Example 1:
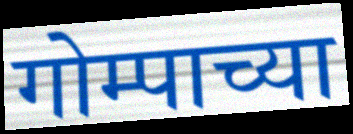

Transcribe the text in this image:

गोम्पाच्या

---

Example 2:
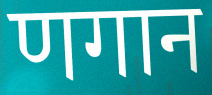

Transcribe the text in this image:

णगान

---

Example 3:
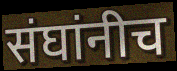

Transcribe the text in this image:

संघांनीच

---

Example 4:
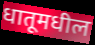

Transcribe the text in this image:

धातूमधील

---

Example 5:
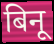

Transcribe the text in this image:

बिनू